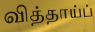
வித்தாய்ப்